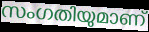
സംഗതിയുമാണ്